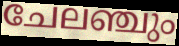
ചേലഞ്ചും